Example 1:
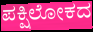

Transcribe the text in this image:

ಪಕ್ಷಿಲೋಕದ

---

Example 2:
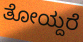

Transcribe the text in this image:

ತೋಯ್ದರೆ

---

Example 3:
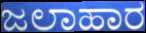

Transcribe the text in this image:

ಜಲಾಹಾರ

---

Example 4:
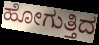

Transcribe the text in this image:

ಹೋಗುತ್ತಿದ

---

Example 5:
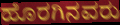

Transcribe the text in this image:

ಹೊರಗಿನವರು